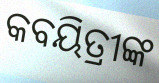
କବୟିତ୍ରୀଙ୍କ